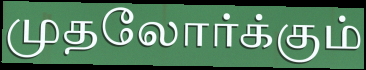
முதலோர்க்கும்